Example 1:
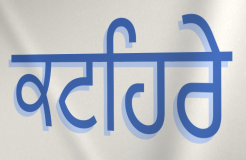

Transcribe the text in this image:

ਕਟਹਿਰੇ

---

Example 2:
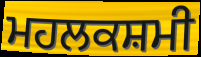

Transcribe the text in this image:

ਮਹਲਕਸ਼ਮੀ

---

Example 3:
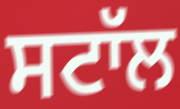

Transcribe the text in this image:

ਸਟਾੱਲ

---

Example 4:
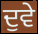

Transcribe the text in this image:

ਦੁਵੇ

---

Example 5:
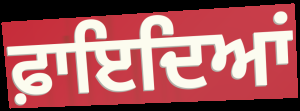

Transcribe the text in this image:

ਫ਼ਾਇਦਿਆਂ